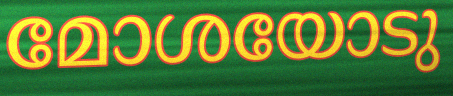
മോശയോടു